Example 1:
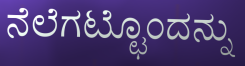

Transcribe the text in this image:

ನೆಲೆಗಟ್ಟೊಂದನ್ನು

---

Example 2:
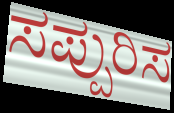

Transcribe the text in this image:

ಸಪ್ಪುರಿಸ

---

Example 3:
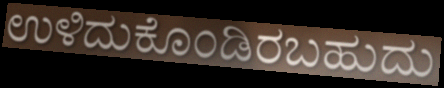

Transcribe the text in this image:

ಉಳಿದುಕೊಂಡಿರಬಹುದು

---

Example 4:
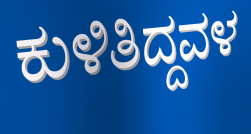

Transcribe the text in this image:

ಕುಳಿತಿದ್ದವಳ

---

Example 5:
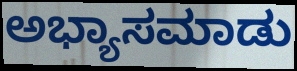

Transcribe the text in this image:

ಅಭ್ಯಾಸಮಾಡು